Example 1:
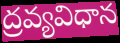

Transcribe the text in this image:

ద్రవ్యవిధాన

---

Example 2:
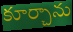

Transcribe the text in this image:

కూర్చాను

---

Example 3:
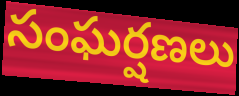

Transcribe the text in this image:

సంఘర్షణలు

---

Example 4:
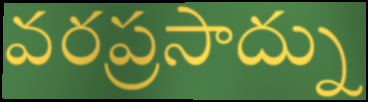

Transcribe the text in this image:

వరప్రసాద్ను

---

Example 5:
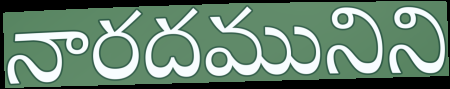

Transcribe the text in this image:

నారదమునిని